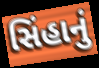
સિંહાનું